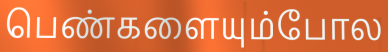
பெண்களையும்போல